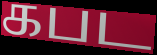
கபட